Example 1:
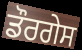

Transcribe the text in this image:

ਡੌਰਗੇਸ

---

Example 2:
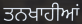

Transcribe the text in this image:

ਤਨਖਾਹੀਆਂ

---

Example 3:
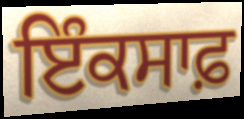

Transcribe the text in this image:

ਇੰਕਸਾਫ਼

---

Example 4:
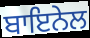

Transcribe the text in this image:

ਬਾਇਨੇਲ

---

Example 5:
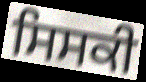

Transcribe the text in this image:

ਸਿਸਕੀ